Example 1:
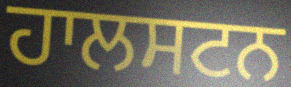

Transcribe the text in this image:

ਹਾਲਸਟਨ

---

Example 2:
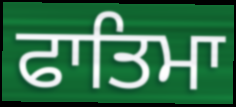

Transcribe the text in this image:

ਫਾਤਿਮਾ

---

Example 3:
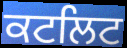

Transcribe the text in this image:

ਕਟਲਿਟ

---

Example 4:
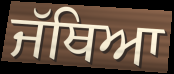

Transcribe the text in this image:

ਜੱਥਿਆ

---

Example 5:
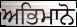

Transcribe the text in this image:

ਅਭਿਮਾਨੋ